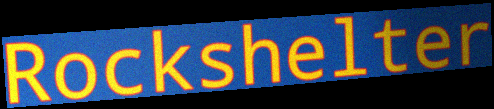
Rockshelter